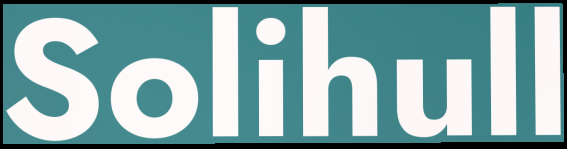
Solihull